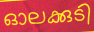
ഓലക്കുടി